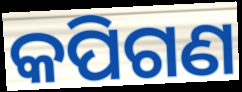
କପିଗଣ